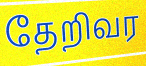
தேறிவர